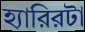
হ্যারিরটা